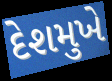
દેશમુખે